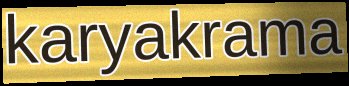
karyakrama